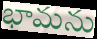
భామను